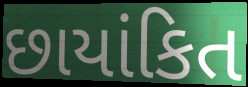
છાયાંકિત